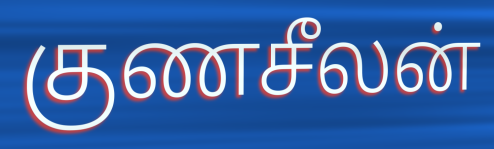
குணசீலன்